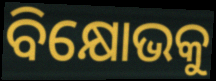
ବିକ୍ଷୋଭକୁ